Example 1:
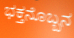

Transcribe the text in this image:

ಭಕ್ತನೊಬ್ಬನ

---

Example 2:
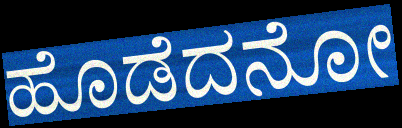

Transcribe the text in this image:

ಹೊಡೆದನೋ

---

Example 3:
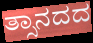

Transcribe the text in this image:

ತ್ಸಾನದದ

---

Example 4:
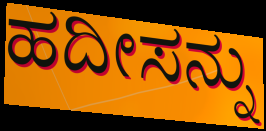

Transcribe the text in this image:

ಹದೀಸನ್ನು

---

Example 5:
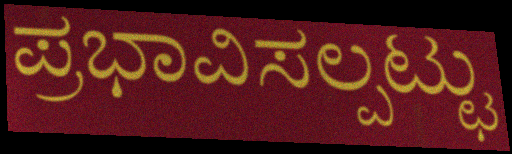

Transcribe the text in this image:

ಪ್ರಭಾವಿಸಲ್ಪಟ್ಟು